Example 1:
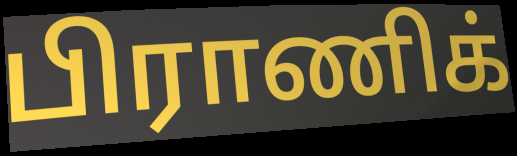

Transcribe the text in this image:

பிராணிக்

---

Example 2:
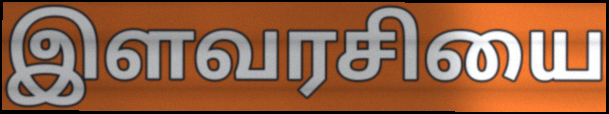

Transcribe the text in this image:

இளவரசியை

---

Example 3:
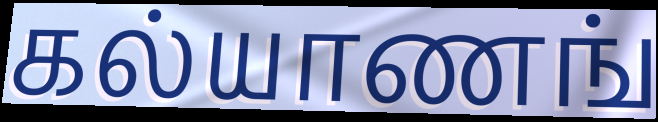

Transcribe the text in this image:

கல்யாணங்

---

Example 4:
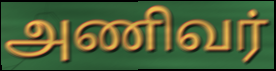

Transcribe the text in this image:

அணிவர்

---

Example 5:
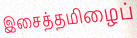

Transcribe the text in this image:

இசைத்தமிழைப்